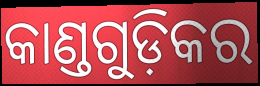
କାଣ୍ଡଗୁଡ଼ିକର